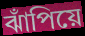
ঝাঁপিয়ে